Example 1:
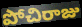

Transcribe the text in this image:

పోచిరాజు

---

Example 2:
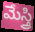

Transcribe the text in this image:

మేస్త్రి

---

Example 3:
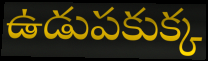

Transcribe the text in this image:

ఉడుపకుక్క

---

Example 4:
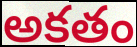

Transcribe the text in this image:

అకతం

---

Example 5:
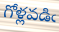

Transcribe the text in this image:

గోళ్లవడిఁ